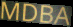
MDBA